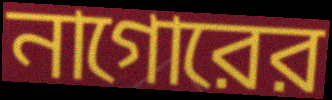
নাগোরের